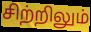
சிற்றிலும்